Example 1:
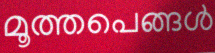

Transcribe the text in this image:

മൂത്തപെങ്ങൾ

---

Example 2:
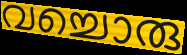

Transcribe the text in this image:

വച്ചൊരു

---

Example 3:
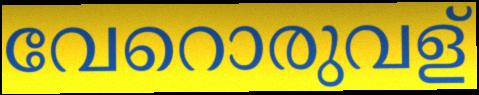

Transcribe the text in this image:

വേറൊരുവള്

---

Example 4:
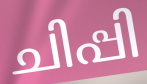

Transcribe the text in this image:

ചിപ്പി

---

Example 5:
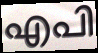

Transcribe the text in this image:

എപി